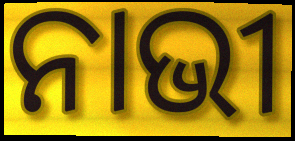
ନାଭୀ